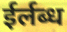
ईर्लब्ध